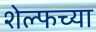
शेल्फच्या